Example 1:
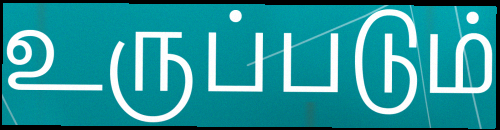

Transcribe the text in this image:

உருப்படும்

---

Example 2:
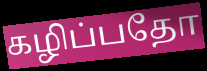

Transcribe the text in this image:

கழிப்பதோ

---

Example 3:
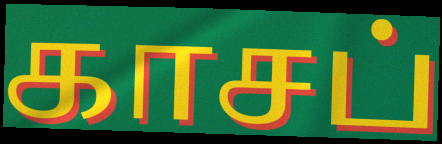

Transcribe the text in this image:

காசப்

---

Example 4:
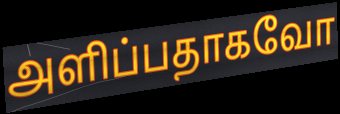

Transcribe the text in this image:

அளிப்பதாகவோ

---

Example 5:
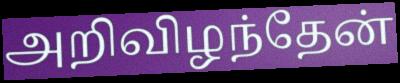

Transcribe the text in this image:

அறிவிழந்தேன்